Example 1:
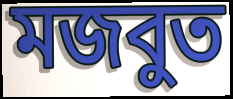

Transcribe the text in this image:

মজবুত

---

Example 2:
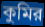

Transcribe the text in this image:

কুমির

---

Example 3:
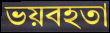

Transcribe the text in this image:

ভয়বহতা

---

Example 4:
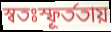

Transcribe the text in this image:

স্বতঃস্ফূর্ততায়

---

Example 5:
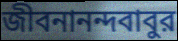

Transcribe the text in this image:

জীবনানন্দবাবুর